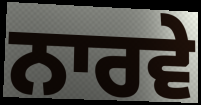
ਨਾਰਵੇ